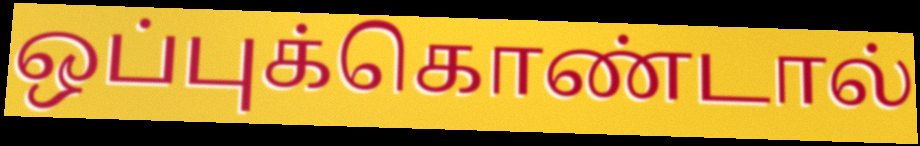
ஒப்புக்கொண்டால்